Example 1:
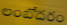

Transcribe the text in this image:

లంబోదరం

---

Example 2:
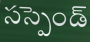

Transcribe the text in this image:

సస్పెండ్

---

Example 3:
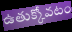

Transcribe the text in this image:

ఉతుక్కోవటం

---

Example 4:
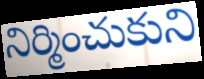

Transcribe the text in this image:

నిర్మించుకుని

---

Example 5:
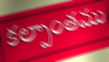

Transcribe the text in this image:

కల్పాంతము